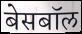
बेसबॉल